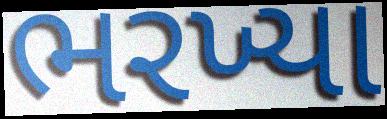
ભરખ્યા